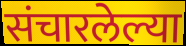
संचारलेल्या